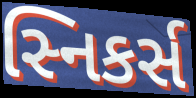
સ્નિકર્સ